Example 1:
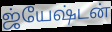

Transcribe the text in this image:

ஜ்யேஷ்டன்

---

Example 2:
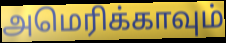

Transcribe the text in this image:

அமெரிக்காவும்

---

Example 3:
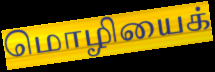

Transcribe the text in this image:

மொழியைக்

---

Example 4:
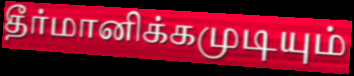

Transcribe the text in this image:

தீர்மானிக்கமுடியும்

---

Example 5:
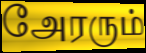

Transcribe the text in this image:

அேரரும்